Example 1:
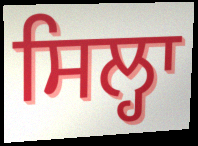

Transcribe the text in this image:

ਸਿਲ੍ਹਾ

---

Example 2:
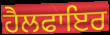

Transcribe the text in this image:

ਹੈਲਫਾਇਰ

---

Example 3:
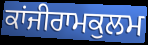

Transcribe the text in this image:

ਕਾਂਜੀਰਾਮਕੁਲਮ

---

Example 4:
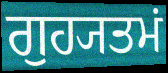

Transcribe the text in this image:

ਗੁਹ੍ਯਤਮਂ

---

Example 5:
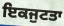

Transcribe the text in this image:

ਇਕਜੁਟਤਾ